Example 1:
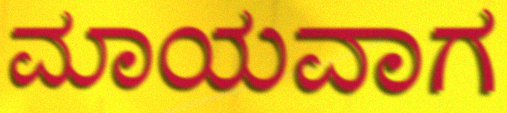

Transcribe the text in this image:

ಮಾಯವಾಗ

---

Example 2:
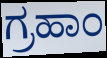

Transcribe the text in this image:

ಗ್ರಹಾಂ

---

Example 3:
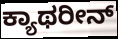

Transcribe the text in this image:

ಕ್ಯಾಥರೀನ್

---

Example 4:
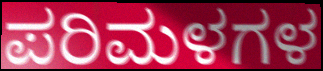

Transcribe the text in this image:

ಪರಿಮಳಗಳ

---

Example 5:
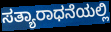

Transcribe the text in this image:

ಸತ್ಯಾರಾಧನೆಯಲ್ಲಿ